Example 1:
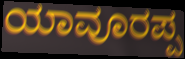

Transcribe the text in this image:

ಯಾವೂರಪ್ಪ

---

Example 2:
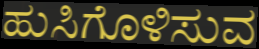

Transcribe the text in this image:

ಹುಸಿಗೊಳಿಸುವ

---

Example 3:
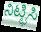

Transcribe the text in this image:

ನಿಟ್ಟಿಸಿ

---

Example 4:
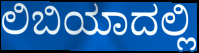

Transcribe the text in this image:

ಲಿಬಿಯಾದಲ್ಲಿ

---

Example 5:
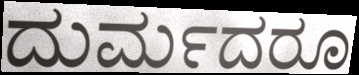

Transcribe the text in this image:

ದುರ್ಮದರೂ